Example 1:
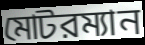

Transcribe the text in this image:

মোটরম্যান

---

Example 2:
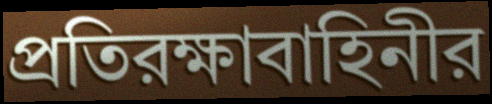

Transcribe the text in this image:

প্রতিরক্ষাবাহিনীর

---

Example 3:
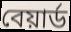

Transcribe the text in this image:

বেয়ার্ড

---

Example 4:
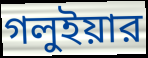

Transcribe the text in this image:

গলুইয়ার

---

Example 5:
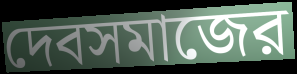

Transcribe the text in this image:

দেবসমাজের